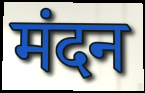
मंदन